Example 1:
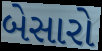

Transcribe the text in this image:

બેસારો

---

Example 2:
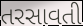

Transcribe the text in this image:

તરસાવતી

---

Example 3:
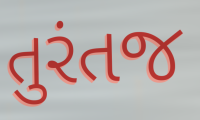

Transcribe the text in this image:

તુરંતજ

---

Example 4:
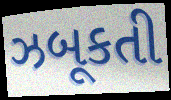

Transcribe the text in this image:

ઝબૂકતી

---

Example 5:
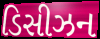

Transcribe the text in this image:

ડિસીઝન